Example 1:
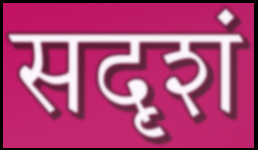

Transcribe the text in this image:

सदृशं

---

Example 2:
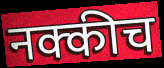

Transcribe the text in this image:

नक्‍कीच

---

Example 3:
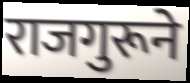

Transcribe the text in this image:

राजगुरूने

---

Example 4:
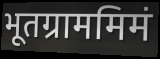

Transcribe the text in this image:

भूतग्राममिमं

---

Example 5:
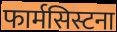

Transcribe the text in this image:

फार्मसिस्टना